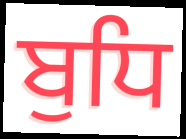
ਬੁਧਿ